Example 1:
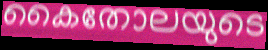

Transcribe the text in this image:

കൈതോലയുടെ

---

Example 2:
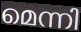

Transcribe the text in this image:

മെന്നി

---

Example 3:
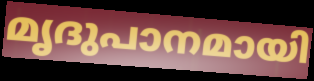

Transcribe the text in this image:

മൃദുപാനമായി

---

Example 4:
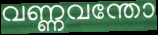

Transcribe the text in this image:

വണ്ണവന്തോ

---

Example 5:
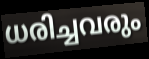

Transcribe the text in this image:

ധരിച്ചവരും